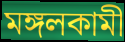
মঙ্গলকামী